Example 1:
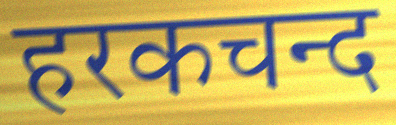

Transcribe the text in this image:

हरकचन्द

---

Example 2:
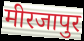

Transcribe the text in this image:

मीरजापुर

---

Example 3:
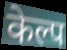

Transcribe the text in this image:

केल्प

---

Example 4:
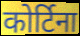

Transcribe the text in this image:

कोर्टिना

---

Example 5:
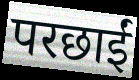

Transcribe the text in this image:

परछाईं